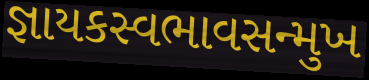
જ્ઞાયકસ્વભાવસન્મુખ